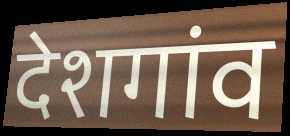
देशगांव